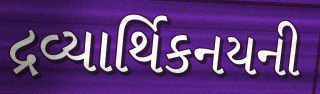
દ્રવ્યાર્થિકનયની